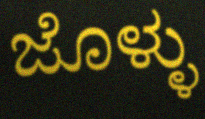
ಜೊಳ್ಳು